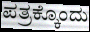
ಪತ್ರಕ್ಕೊಂದು